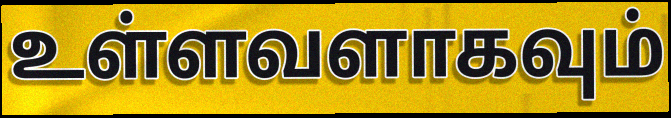
உள்ளவளாகவும்